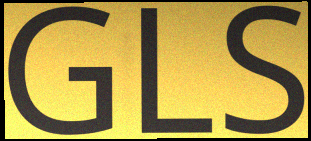
GLS